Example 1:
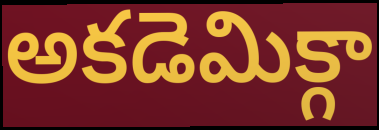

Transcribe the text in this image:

అకడెమిక్గా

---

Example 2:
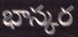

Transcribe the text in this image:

భాస్కర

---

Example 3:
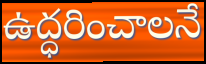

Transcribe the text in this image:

ఉద్ధరించాలనే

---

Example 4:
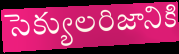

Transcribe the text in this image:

సెక్యులరిజానికి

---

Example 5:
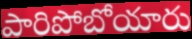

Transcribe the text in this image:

పారిపోబోయారు